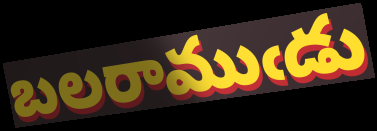
బలరాముఁడు